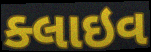
ક્લાઇવ